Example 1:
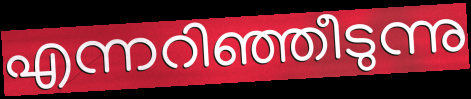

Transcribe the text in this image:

എന്നറിഞ്ഞീടുന്നു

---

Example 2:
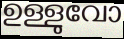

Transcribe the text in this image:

ഉള്ളുവോ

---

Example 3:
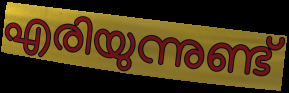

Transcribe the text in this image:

എരിയുന്നുണ്ട്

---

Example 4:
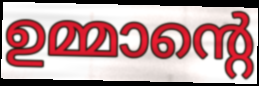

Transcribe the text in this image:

ഉമ്മാന്റെ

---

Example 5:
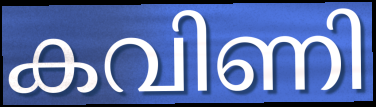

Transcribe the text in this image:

കവിണി